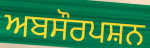
ਅਬਸੌਰਪਸ਼ਨ